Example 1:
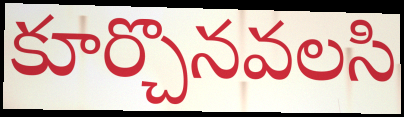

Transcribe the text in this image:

కూర్చొనవలసి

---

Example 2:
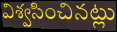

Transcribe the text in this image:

విశ్వసించినట్లు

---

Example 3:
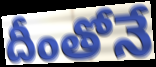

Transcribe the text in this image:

దీంతోనే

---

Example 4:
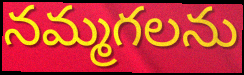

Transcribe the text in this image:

నమ్మగలను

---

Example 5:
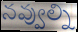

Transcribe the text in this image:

నవ్వుల్ని